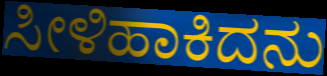
ಸೀಳಿಹಾಕಿದನು